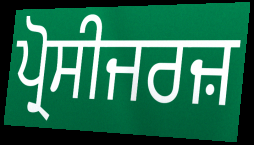
ਪ੍ਰੋਸੀਜਰਜ਼